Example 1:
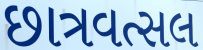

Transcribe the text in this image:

છાત્રવત્સલ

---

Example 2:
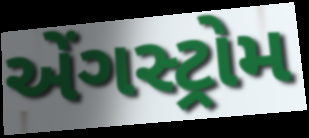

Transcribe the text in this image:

એંગસ્ટ્રોમ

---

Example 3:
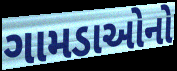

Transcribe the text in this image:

ગામડાઓનો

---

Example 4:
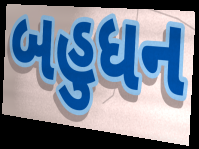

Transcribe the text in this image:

બહુધન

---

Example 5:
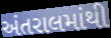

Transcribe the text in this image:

અંતરાલમાંથી